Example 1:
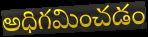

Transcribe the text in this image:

అధిగమించడం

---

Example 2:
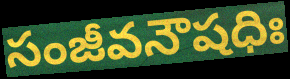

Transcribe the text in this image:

సంజీవనౌషధిః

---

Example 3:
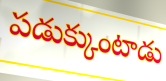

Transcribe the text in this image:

పడుక్కుంటాడు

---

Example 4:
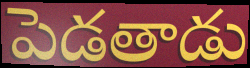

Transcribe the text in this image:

పెడతాడు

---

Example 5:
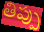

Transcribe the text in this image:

తిప్పు